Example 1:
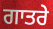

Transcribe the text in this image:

ਗਾਤਰੇ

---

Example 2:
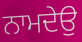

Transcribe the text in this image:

ਨਾਮਦੇਉ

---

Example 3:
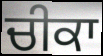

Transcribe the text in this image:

ਚੀਕਾ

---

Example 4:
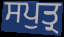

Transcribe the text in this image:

ਸਪੁਤ੍ਰ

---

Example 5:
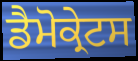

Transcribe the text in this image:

ਡੈਮੋਕ੍ਰੇਟਸ